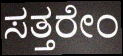
ಸತ್ತರೇಂ